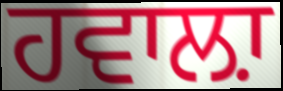
ਹਵਾਲ਼ਾ